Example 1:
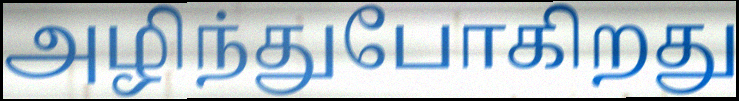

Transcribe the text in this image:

அழிந்துபோகிறது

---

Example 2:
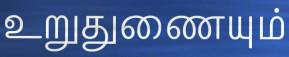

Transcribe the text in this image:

உறுதுணையும்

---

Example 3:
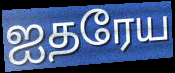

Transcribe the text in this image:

ஐதரேய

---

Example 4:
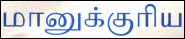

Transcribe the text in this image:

மானுக்குரிய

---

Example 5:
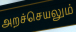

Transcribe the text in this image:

அறச்செயலும்